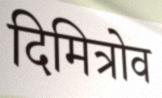
दिमित्रोव